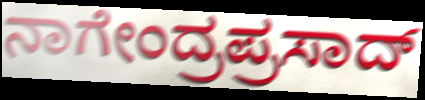
ನಾಗೇಂದ್ರಪ್ರಸಾದ್